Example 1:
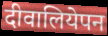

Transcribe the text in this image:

दीवालियेपन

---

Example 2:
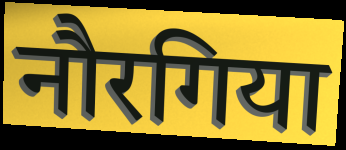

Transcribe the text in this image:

नौरगिया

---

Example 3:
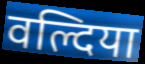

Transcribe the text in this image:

वल्दिया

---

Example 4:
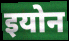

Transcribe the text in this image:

इयोन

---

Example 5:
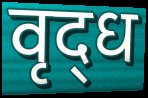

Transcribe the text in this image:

वृद्ध